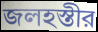
জলহস্তীর